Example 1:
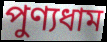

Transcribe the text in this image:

পুণ্যধাম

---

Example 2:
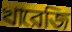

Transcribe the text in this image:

খারেজি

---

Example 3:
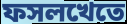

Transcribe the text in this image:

ফসলখেতে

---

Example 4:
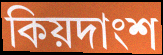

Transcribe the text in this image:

কিয়দাংশ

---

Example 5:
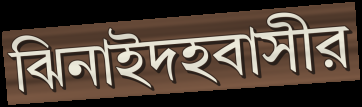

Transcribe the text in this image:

ঝিনাইদহবাসীর